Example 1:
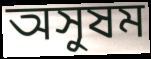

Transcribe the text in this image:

অসুষম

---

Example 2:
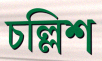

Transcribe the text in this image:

চল্লিশ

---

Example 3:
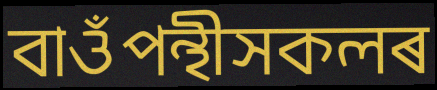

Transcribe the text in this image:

বাওঁপন্থীসকলৰ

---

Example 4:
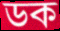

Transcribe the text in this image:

ডক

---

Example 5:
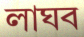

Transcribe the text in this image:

লাঘব